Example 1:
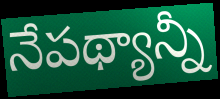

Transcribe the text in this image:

నేపథ్యాన్నీ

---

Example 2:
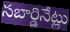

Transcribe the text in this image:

సబార్డినేట్లు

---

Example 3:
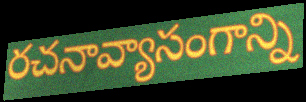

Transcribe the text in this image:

రచనావ్యాసంగాన్ని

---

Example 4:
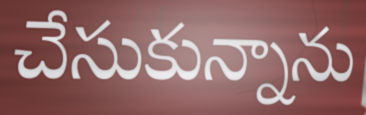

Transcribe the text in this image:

చేసుకున్నాను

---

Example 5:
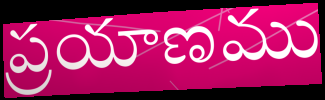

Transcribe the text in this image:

ప్రయాణము